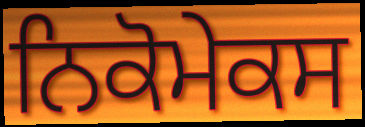
ਨਿਕੋਮੇਕਸ